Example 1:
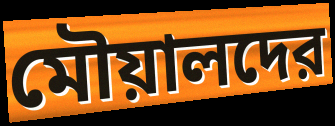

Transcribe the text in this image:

মৌয়ালদের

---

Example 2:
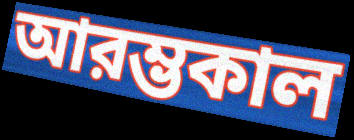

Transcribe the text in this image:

আরম্ভকাল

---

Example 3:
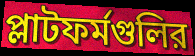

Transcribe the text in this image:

প্লাটফর্মগুলির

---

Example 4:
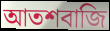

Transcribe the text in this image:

আতশবাজি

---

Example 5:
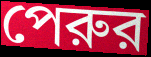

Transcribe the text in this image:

পেরুর